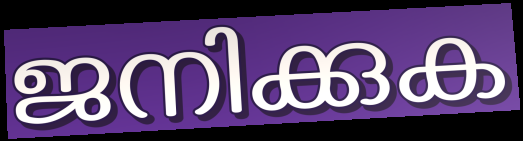
ജനിക്കുക